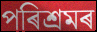
পৰিশ্ৰমৰ